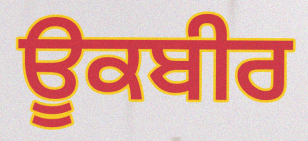
ਊਕਬੀਰ